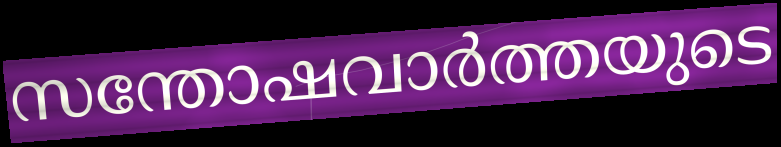
സന്തോഷവാർത്തയുടെ